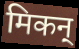
मिकन्